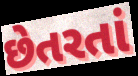
છેતરતાં